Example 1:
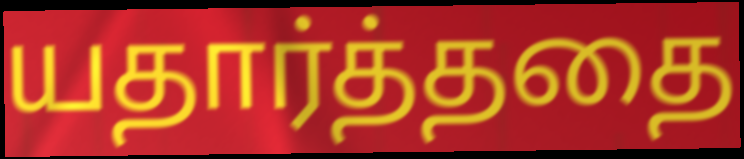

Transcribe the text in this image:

யதார்த்ததை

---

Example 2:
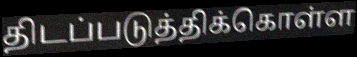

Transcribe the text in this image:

திடப்படுத்திக்கொள்ள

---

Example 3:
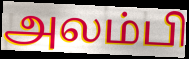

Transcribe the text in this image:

அலம்பி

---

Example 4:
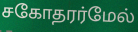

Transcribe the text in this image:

சகோதரர்மேல்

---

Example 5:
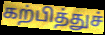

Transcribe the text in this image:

கற்பித்துச்